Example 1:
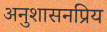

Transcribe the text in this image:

अनुशासनप्रिय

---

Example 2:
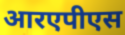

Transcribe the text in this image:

आरएपीएस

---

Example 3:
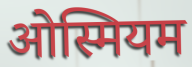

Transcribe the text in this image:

ओस्मियम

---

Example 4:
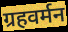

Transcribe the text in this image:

ग्रहवर्मन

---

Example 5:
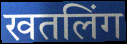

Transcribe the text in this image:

खतलिंग